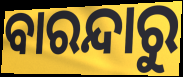
ବାରନ୍ଦାରୁ